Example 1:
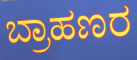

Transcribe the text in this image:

ಬ್ರಾಹಣರ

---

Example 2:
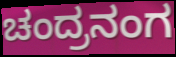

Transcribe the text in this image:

ಚಂದ್ರನಂಗ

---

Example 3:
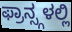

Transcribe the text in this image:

ಫ್ರಾನ್ಸ್ಗಳಲ್ಲಿ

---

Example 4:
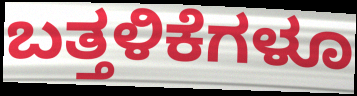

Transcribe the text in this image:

ಬತ್ತಳಿಕೆಗಳೂ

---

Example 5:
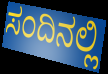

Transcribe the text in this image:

ಸಂದಿನಲ್ಲಿ